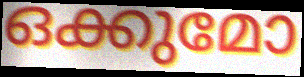
ഒക്കുമോ